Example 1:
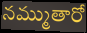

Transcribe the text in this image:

నమ్ముతారో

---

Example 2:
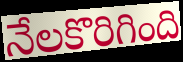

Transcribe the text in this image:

నేలకొరిగింది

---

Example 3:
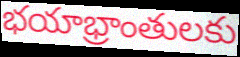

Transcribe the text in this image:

భయాభ్రాంతులకు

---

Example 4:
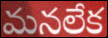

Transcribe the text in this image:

మనలేక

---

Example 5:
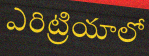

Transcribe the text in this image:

ఎరిట్రియాలో